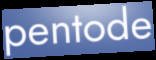
pentode